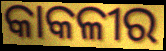
କାକଳୀର